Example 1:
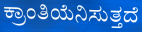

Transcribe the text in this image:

ಕ್ರಾಂತಿಯೆನಿಸುತ್ತದೆ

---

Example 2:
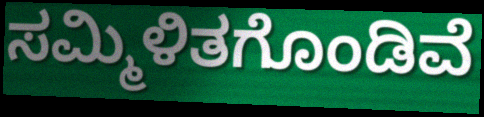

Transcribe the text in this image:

ಸಮ್ಮಿಳಿತಗೊಂಡಿವೆ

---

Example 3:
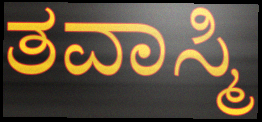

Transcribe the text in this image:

ತವಾಸ್ಮಿ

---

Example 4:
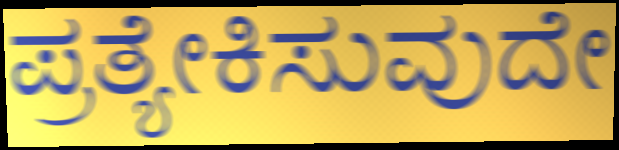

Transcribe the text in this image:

ಪ್ರತ್ಯೇಕಿಸುವುದೇ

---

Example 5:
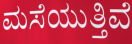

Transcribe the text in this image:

ಮಸೆಯುತ್ತಿವೆ